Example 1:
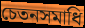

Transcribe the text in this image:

চেতনসমাধি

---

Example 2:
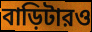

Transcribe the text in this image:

বাড়িটারও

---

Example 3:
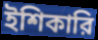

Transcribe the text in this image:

ইশিকারি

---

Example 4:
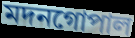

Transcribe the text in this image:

মদনগোপাল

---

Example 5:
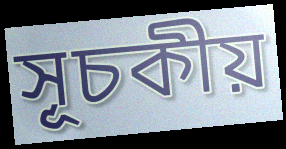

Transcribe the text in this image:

সূচকীয়